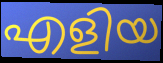
എളിയ